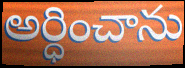
అర్ధించాను